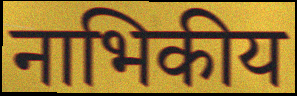
नाभिकीय